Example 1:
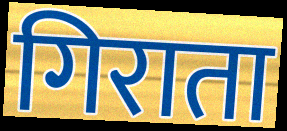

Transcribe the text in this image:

गिराता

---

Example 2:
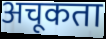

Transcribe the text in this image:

अचूकता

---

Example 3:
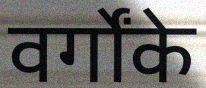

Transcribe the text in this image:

वर्गोंके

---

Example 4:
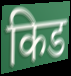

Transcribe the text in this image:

किड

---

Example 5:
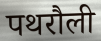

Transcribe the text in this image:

पथरौली